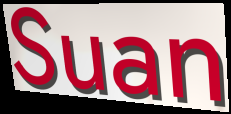
Suan